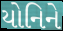
યોનિને